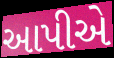
આપીએ